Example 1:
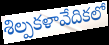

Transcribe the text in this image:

శిల్పకళావేదికలో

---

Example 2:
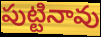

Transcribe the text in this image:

పుట్టినావు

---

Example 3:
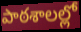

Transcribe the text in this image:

పాఠశాలల్లో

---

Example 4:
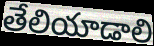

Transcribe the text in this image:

తేలియాడాలి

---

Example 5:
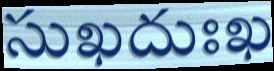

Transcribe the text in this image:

సుఖదుఃఖ